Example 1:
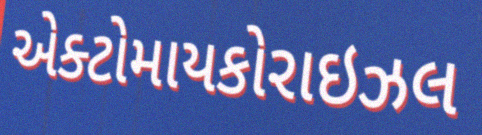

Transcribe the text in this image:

એક્ટોમાયકોરાઇઝલ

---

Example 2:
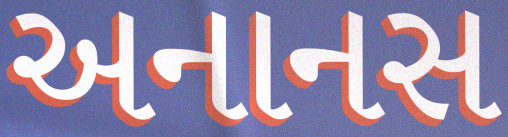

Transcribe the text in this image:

અનાનસ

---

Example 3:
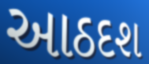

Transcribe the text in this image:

આઠદશ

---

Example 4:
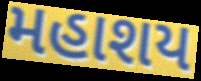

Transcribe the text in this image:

મહાશય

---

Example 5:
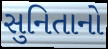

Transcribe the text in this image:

સુનિતાનો